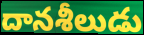
దానశీలుడు